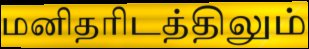
மனிதரிடத்திலும்